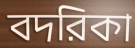
বদরিকা